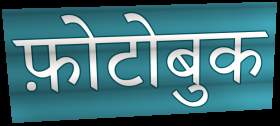
फ़ोटोबुक